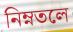
নিম্নতলে